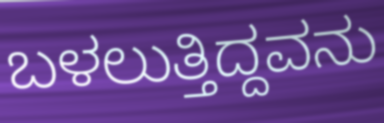
ಬಳಲುತ್ತಿದ್ದವನು